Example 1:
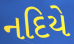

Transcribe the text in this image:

નદિયે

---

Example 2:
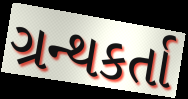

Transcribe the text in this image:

ગ્રન્થકર્તા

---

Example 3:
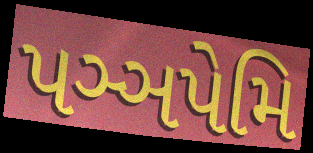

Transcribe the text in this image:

પઞ્ઞપેમિ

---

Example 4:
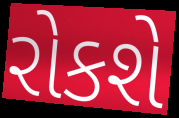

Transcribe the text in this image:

રોકશે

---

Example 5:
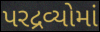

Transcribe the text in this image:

પરદ્રવ્યોમાં